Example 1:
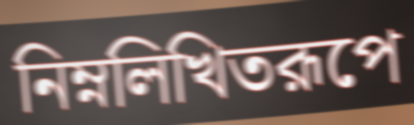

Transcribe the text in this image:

নিম্নলিখিতরূপে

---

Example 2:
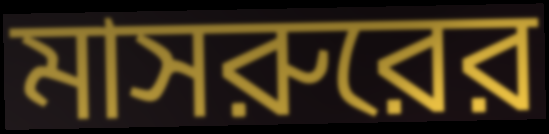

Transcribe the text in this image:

মাসরুরের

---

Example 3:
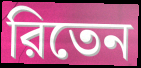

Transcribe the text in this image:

রিতেন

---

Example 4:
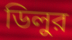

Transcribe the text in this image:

ডিলুর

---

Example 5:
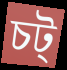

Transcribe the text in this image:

চট্